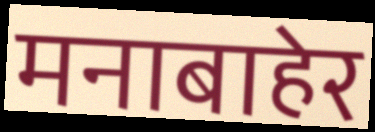
मनाबाहेर